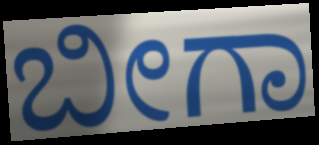
ಬೀಗಾ